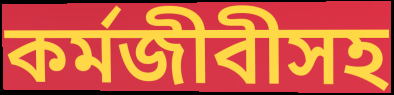
কর্মজীবীসহ